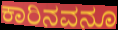
ಕಾರಿನವನೂ